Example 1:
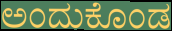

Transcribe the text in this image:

ಅಂದುಕೊಂಡ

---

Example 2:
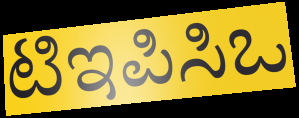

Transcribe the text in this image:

ಟಿಇಪಿಸಿಒ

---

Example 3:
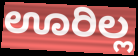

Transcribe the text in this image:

ಊರಿಲ್ಲ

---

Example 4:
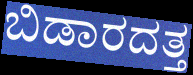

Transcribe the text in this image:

ಬಿಡಾರದತ್ತ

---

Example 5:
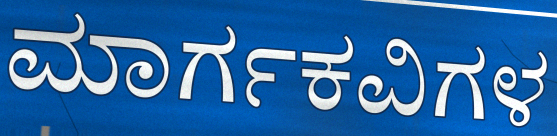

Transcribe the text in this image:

ಮಾರ್ಗಕವಿಗಳ